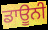
ਡਾਊਨੀ